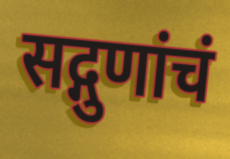
सद्गुणांचं